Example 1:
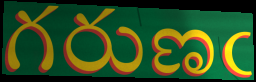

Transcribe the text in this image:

గరుణఁ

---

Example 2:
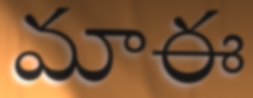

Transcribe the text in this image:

మాఈ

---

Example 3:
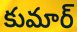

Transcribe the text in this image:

కుమార్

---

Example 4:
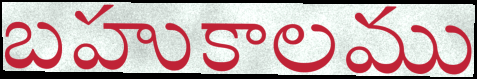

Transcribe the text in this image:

బహుకాలము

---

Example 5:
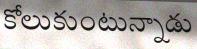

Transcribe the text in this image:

కోలుకుంటున్నాడు